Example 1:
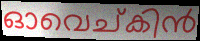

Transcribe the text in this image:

ഓവെച്കിൻ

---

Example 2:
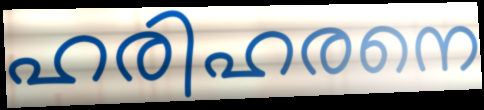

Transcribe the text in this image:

ഹരിഹരനെ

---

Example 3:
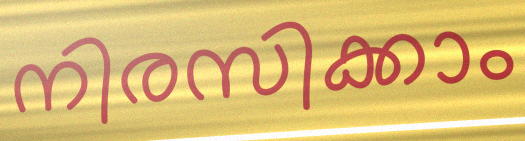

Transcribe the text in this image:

നിരസിക്കാം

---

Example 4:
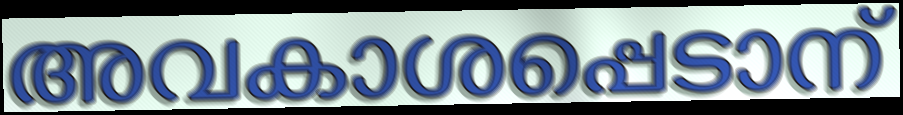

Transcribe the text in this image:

അവകാശപ്പെടാന്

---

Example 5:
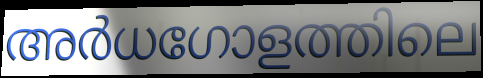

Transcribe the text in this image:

അർധഗോളത്തിലെ